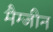
मैग्जीन